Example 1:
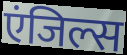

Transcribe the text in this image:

एंजिल्स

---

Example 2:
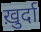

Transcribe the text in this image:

ख़ुर्दा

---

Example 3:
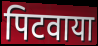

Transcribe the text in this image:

पिटवाया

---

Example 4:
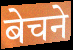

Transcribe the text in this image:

बेचने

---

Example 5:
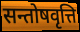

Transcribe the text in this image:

सन्तोषवृत्ति